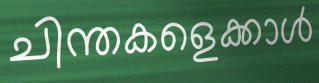
ചിന്തകളെക്കാൾ